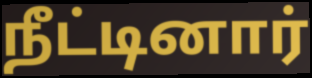
நீட்டினார்